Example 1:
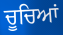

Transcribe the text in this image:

ਚੂਚਿਆਂ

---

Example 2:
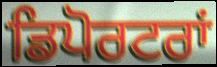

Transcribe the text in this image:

ਡਿਪੋਰਟਰਾਂ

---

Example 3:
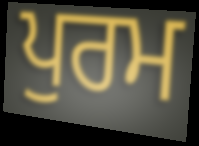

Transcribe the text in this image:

ਪੁਰਮ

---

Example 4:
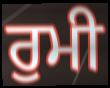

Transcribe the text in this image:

ਰੁਮੀ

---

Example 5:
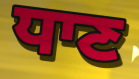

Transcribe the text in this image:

ਧਾਣ